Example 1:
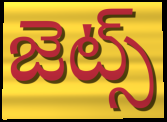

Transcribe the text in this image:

జెట్స్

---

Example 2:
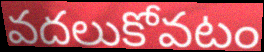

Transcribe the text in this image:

వదలుకోవటం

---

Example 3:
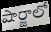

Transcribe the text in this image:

షార్జాలో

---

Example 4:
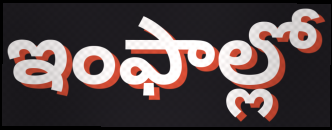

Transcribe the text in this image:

ఇంఫాల్లో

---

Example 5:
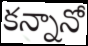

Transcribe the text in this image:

కన్నానో